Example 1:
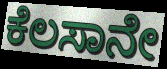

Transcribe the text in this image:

ಕೆಲಸಾನೇ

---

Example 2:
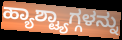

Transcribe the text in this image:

ಹ್ಯಾಶ್ಟ್ಯಾಗ್ಗಳನ್ನು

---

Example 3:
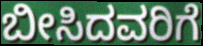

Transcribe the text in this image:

ಬೀಸಿದವರಿಗೆ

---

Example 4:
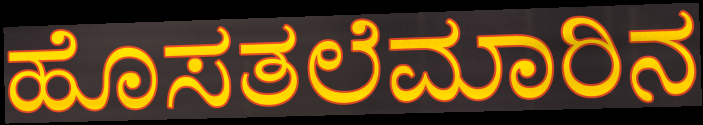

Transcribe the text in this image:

ಹೊಸತಲೆಮಾರಿನ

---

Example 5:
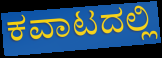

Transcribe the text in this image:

ಕವಾಟದಲ್ಲಿ